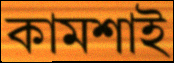
কামশাই